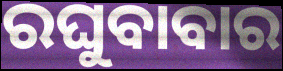
ରଘୁବାବାର